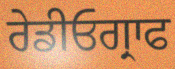
ਰੇਡੀਓਗ੍ਰਾਫ